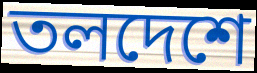
তলদেশে